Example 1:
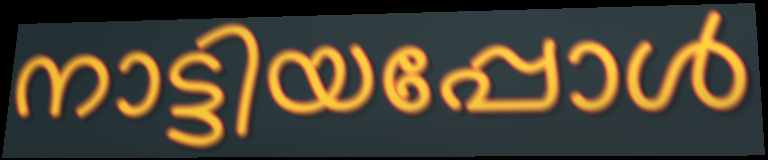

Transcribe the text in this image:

നാട്ടിയപ്പോൾ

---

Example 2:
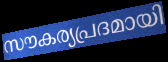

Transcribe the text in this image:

സൗകര്യപ്രദമായി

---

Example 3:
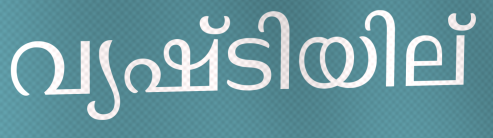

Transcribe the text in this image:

വ്യഷ്ടിയില്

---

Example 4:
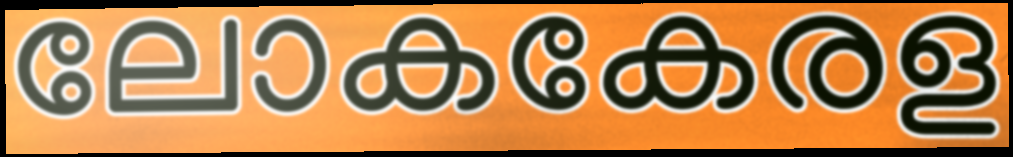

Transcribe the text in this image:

ലോകകേരള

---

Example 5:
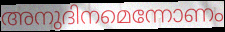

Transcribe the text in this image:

അനുദിനമെന്നോണം